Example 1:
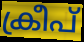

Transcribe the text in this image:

ക്രീപ്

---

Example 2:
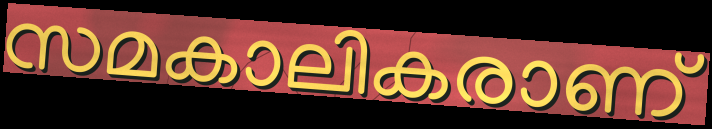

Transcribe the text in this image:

സമകാലികരാണ്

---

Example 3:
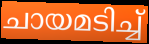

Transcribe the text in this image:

ചായമടിച്ച്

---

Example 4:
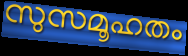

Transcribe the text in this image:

സുസമൂഹതം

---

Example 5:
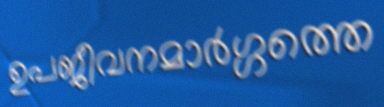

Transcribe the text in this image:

ഉപജീവനമാർഗ്ഗത്തെ